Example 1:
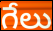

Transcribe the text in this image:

గేలు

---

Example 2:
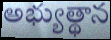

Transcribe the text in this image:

అభ్యుత్థాన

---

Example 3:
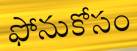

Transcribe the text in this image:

ఫోనుకోసం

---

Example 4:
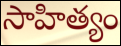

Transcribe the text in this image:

సాహిత్యం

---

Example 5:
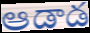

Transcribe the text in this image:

ఆడాడ